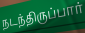
நடந்திருப்பார்